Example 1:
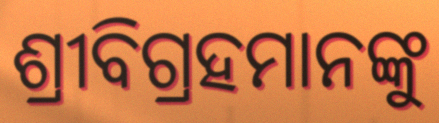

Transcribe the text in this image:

ଶ୍ରୀବିଗ୍ରହମାନଙ୍କୁ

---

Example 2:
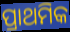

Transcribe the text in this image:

ପ୍ରାଥମିକ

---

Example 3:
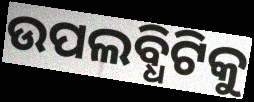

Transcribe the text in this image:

ଉପଲବ୍ଧିଟିକୁ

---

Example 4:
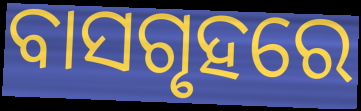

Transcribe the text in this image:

ବାସଗୃହରେ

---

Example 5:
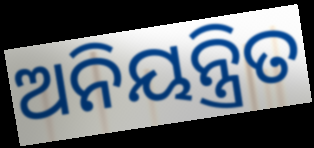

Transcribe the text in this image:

ଅନିୟନ୍ତ୍ରିତ